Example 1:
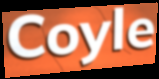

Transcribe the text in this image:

Coyle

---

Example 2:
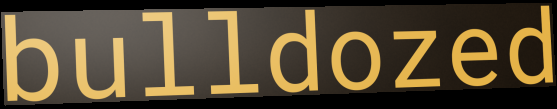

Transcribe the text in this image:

bulldozed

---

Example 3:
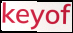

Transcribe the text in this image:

keyof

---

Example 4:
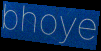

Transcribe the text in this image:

bhoye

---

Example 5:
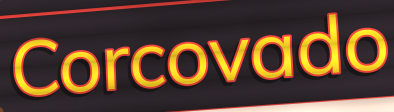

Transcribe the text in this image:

Corcovado